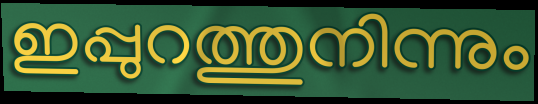
ഇപ്പുറത്തുനിന്നും